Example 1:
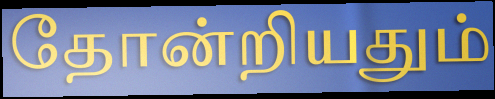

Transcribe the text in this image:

தோன்றியதும்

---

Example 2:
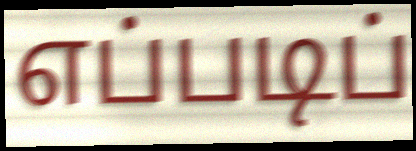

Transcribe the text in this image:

எப்படிப்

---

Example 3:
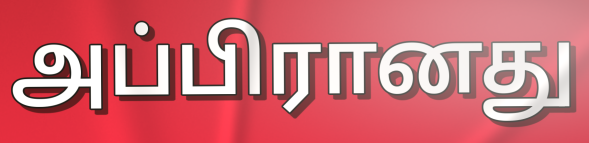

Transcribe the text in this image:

அப்பிரானது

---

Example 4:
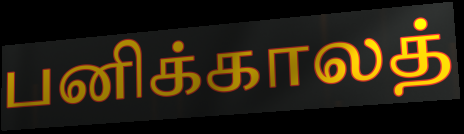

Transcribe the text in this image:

பனிக்காலத்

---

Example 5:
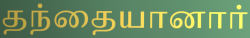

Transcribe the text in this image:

தந்தையானார்